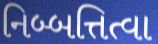
નિબ્બત્તિત્વા